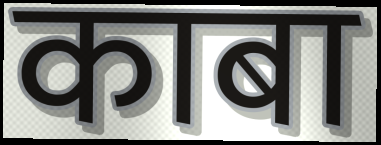
काबा